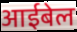
आईबेल